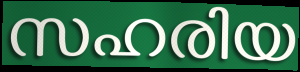
സഹരിയ